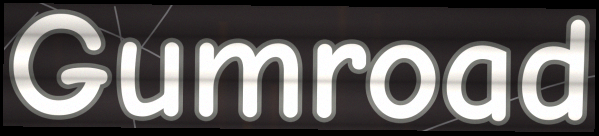
Gumroad